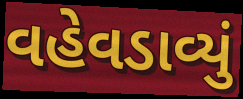
વહેવડાવ્યું